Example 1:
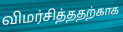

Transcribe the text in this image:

விமர்சித்ததற்காக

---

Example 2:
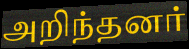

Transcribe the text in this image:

அறிந்தனர்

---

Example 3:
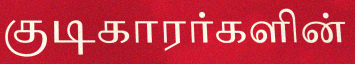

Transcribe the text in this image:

குடிகாரர்களின்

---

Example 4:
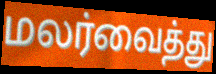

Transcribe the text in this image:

மலர்வைத்து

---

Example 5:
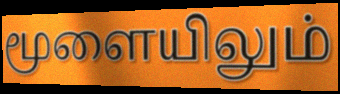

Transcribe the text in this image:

மூளையிலும்